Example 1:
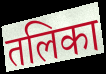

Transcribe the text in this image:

तलिका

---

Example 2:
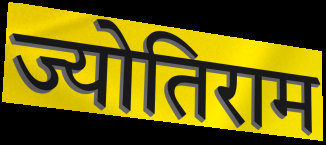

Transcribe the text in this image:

ज्योतिराम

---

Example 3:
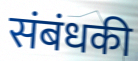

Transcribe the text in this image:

संबंधकी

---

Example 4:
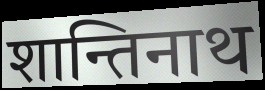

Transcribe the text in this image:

शान्तिनाथ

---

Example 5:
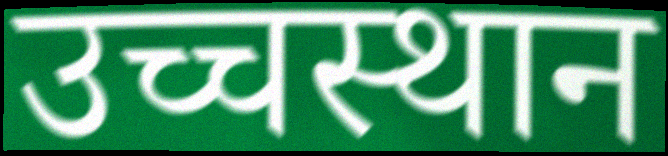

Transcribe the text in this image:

उच्चस्थान